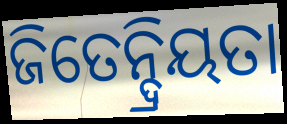
ଜିତେନ୍ଦ୍ରିୟତା